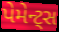
પેમેન્ટ્સ